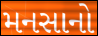
મનસાનો